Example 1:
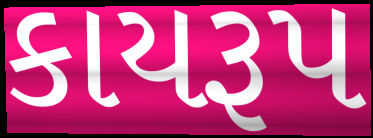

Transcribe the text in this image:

કાયરૂપ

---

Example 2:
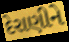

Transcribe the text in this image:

દેરાણીને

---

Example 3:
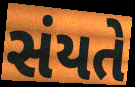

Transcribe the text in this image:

સંયતે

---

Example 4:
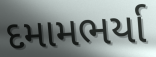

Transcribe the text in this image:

દમામભર્યા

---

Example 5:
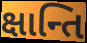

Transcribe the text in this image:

ક્ષાન્તિ